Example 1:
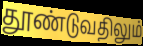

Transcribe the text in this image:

தூண்டுவதிலும்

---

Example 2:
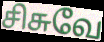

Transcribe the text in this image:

சிசுவே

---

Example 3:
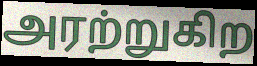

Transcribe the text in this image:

அரற்றுகிற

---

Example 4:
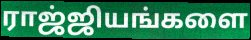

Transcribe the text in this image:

ராஜ்ஜியங்களை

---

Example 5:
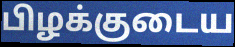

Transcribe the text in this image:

பிழக்குடைய